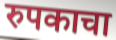
रुपकाचा